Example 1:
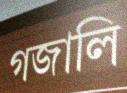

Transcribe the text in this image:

গজালি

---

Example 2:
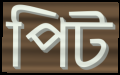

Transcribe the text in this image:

পিট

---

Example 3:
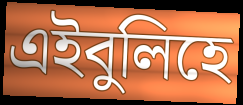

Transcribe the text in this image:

এইবুলিহে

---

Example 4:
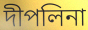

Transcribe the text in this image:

দীপলিনা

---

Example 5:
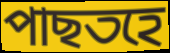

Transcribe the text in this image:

পাছতহে